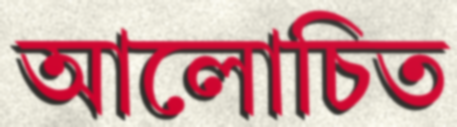
আলোচিত